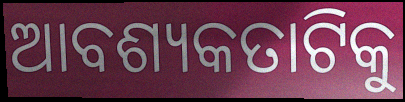
ଆବଶ୍ୟକତାଟିକୁ